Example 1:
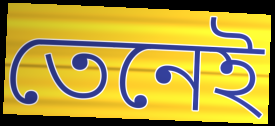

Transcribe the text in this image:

তেনেই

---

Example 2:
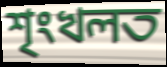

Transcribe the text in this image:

শৃংখলত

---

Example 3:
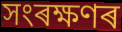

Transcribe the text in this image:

সংৰক্ষণৰ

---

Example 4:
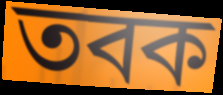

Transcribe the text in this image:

তবক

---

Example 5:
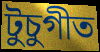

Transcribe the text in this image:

টুচুগীত